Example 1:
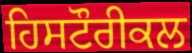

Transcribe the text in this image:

ਹਿਸਟੌਰੀਕਲ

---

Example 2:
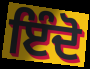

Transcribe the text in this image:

ਇੰਦੋ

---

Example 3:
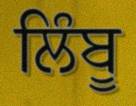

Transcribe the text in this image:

ਲਿੰਬੂ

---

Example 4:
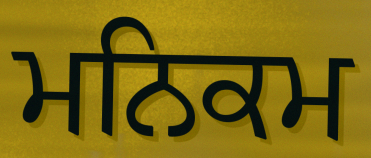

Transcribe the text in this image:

ਮਨਿਕਮ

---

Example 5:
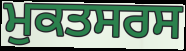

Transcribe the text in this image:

ਮੁਕਤਸਰਸ